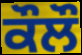
ਕੌਲੌ